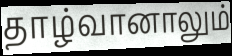
தாழ்வானாலும்